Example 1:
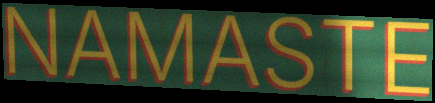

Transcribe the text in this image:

NAMASTE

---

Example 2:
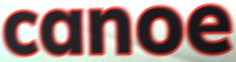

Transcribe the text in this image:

canoe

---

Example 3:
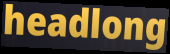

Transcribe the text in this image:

headlong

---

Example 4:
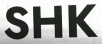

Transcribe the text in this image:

SHK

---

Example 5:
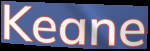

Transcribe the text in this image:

Keane